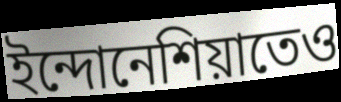
ইন্দোনেশিয়াতেও